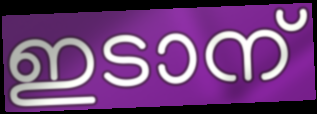
ഇടാന്